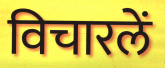
विचारलें